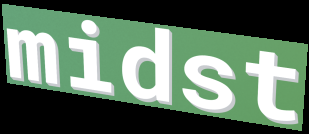
midst